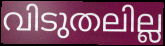
വിടുതലില്ല